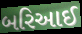
બરિઆઈ